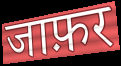
जाफ़र